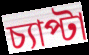
চ্যাপ্টা